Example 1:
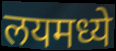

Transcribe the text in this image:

लयमध्ये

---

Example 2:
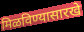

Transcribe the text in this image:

मिळविण्यासारखे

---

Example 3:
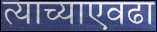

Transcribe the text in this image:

त्याच्याएवढा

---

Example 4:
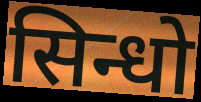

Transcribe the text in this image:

सिन्धो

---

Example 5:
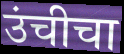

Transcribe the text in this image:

उंचीचा